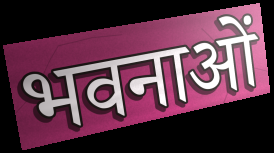
भवनाओं